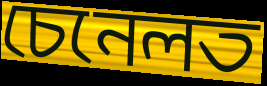
চেনেলত